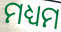
ମଧ୍ୟମ